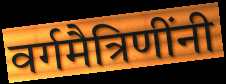
वर्गमैत्रिणींनी